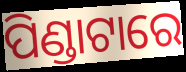
ପିଣ୍ଡାଟାରେ